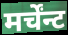
मर्चेंन्ट